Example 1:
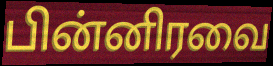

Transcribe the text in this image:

பின்னிரவை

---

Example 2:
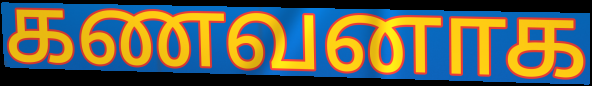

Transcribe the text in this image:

கணவனாக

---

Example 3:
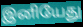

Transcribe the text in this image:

இனியேது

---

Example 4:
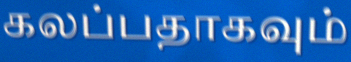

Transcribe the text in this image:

கலப்பதாகவும்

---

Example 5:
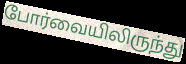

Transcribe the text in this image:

போர்வையிலிருந்து